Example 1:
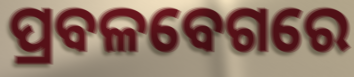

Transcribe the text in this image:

ପ୍ରବଳବେଗରେ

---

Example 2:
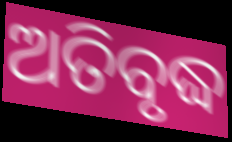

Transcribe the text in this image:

ଅତିବୃଦ୍ଧ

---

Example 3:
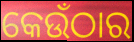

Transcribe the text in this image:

କେଉଁଠାର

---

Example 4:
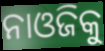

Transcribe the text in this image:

ନାଓଜିକୁ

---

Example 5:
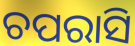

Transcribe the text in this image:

ଚପରାସି